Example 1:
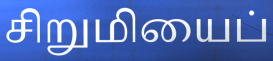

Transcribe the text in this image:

சிறுமியைப்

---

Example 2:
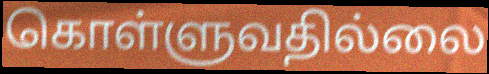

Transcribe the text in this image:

கொள்ளுவதில்லை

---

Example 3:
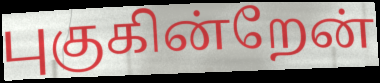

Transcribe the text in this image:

புகுகின்றேன்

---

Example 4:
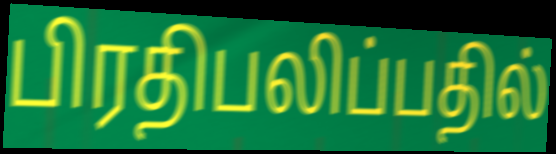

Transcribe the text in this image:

பிரதிபலிப்பதில்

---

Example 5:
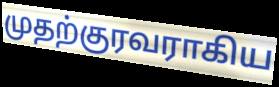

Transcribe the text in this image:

முதற்குரவராகிய